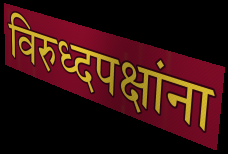
विरुध्दपक्षांना